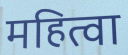
महित्वा